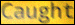
Caught